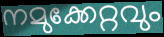
നമുക്കേറ്റവും